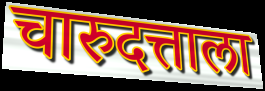
चारुदत्ताला